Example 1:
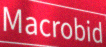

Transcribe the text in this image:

Macrobid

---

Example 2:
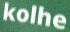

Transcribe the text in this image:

kolhe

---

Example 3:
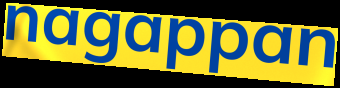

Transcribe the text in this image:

nagappan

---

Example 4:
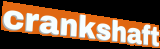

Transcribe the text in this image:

crankshaft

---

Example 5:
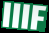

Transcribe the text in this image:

IIIF